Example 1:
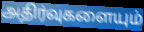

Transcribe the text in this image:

அதிர்வுகளையும்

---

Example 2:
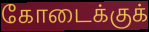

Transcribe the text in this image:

கோடைக்குக்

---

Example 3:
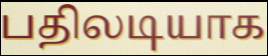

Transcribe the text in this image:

பதிலடியாக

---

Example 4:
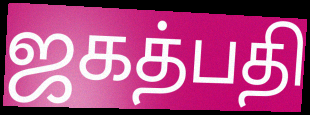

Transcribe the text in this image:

ஜகத்பதி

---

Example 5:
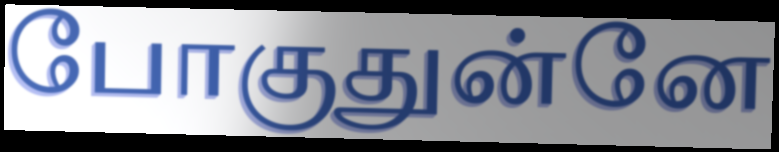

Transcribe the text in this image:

போகுதுன்னே